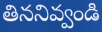
తిననివ్వండి